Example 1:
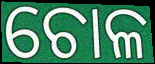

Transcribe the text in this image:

ଚୋଳ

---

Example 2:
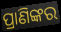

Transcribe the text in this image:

ପ୍ରାଣିଙ୍କର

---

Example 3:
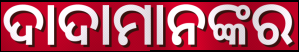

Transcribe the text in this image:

ଦାଦାମାନଙ୍କର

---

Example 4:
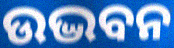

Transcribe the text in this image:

ଉଦ୍ଭବନ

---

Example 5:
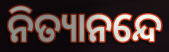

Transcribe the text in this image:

ନିତ୍ୟାନନ୍ଦେ